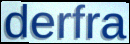
derfra